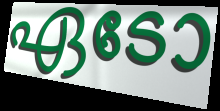
ഏടോ